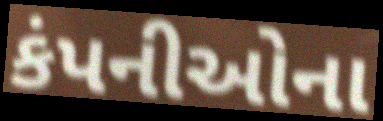
કંપનીઓના